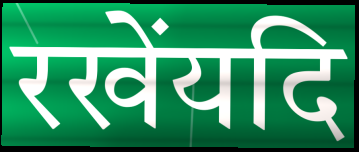
रखेंयदि